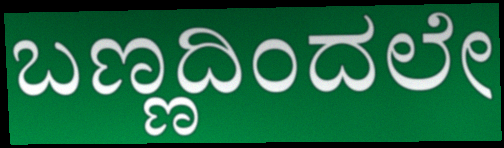
ಬಣ್ಣದಿಂದಲೇ